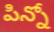
పిన్నో